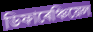
ডিফাৰেঞ্চিয়েল